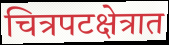
चित्रपटक्षेत्रात